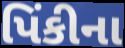
પિંકીના